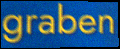
graben